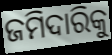
ଜମିଦାରିକୁ